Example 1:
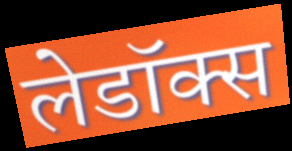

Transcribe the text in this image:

लेडॉक्स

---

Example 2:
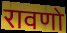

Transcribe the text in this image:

रावणो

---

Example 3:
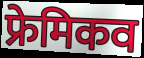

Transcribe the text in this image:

फ्रेमिकव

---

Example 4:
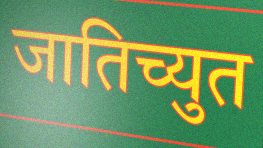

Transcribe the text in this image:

जातिच्युत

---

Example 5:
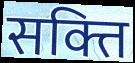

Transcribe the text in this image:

सक्ति